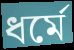
ধর্মে